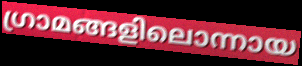
ഗ്രാമങ്ങളിലൊന്നായ